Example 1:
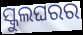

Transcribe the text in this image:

ସ୍କୁଲଘରର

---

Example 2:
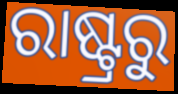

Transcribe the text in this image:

ରାଷ୍ଟ୍ରରୁ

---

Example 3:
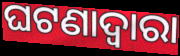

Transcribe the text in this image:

ଘଟଣାଦ୍ୱାରା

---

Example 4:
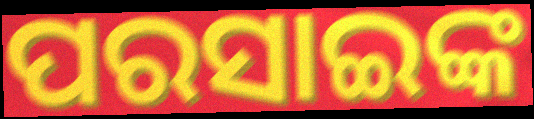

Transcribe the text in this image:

ପରସାଇଙ୍କ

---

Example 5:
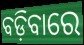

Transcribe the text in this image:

ବଡ଼ିବାରେ